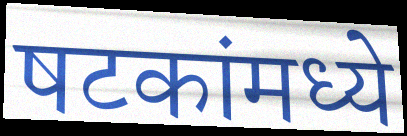
षटकांमध्ये